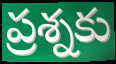
ప్రశ్నకు